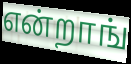
என்றாங்